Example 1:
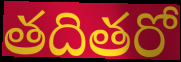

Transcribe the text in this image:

తదితరో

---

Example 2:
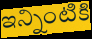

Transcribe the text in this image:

ఇన్నింటికి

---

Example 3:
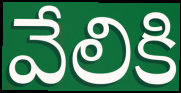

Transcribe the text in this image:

వేలికి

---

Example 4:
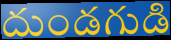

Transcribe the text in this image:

దుండగుడి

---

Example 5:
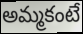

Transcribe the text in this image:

అమ్మకంటే